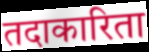
तदाकारिता